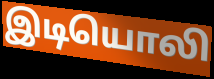
இடியொலி